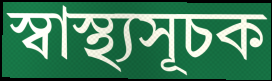
স্বাস্থ্যসূচক